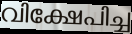
വിക്ഷേപിച്ച